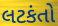
લટકંતો